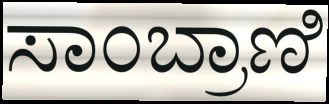
ಸಾಂಬ್ರಾಣಿ